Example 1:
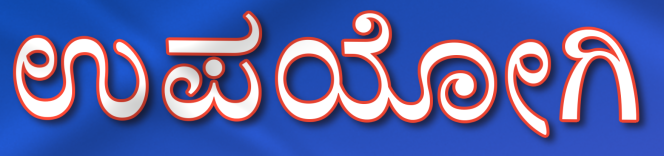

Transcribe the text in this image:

ಉಪಯೋಗಿ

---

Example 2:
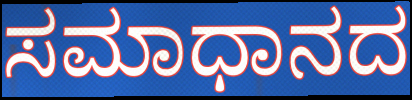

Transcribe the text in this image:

ಸಮಾಧಾನದ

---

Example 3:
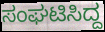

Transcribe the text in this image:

ಸಂಘಟಿಸಿದ್ದ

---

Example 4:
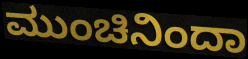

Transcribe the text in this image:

ಮುಂಚಿನಿಂದಾ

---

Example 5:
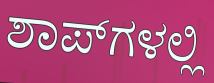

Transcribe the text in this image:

ಶಾಪ್‌ಗಳಲ್ಲಿ